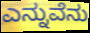
ಎನ್ನುವೆನು